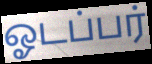
ஓடப்பர்